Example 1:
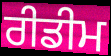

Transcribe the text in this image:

ਰੀਡੀਮ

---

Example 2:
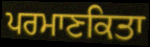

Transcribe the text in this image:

ਪਰਮਾਣਕਿਤਾ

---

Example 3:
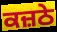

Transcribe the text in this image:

ਕਜ਼ਠੇ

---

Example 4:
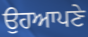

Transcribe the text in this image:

ਉਹਆਪਣੇ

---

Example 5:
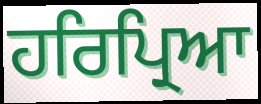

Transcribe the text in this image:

ਹਰਿਪ੍ਰਿਆ